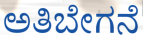
ಅತಿಬೇಗನೆ